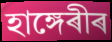
হাঙ্গেৰীৰ